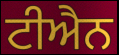
ਟੀਐਨ